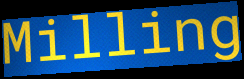
Milling